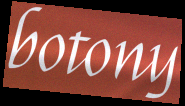
botony